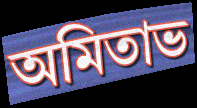
অমিতাভ